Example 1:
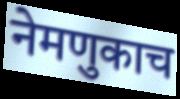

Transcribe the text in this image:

नेमणुकाच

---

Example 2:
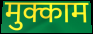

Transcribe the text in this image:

मुक्‍काम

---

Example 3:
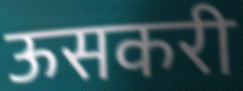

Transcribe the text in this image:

ऊसकरी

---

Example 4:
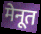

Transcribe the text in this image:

मेनूत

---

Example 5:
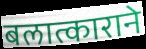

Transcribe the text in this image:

बलात्काराने